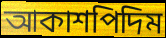
আকাশপিদিম